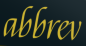
abbrev